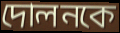
দোলনকে